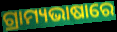
ଗ୍ରାମ୍ୟଭାଷାରେ